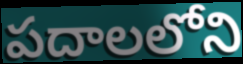
పదాలలోని